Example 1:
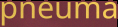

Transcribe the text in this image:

pneuma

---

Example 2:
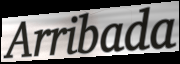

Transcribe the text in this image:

Arribada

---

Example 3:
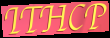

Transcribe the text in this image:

ITHCP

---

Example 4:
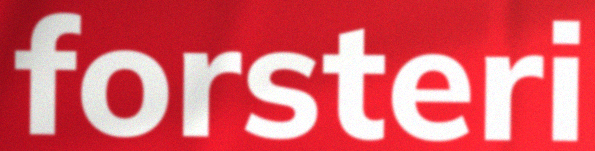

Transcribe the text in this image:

forsteri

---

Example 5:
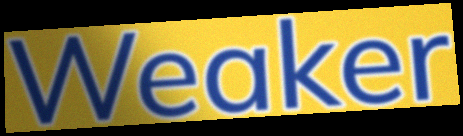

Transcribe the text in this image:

Weaker